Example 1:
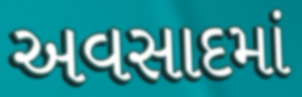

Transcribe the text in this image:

અવસાદમાં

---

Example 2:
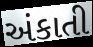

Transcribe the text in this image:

અંકાતી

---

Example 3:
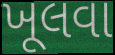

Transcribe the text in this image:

ખૂલવા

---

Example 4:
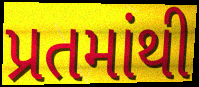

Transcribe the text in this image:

પ્રતમાંથી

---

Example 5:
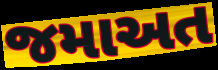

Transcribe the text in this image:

જમાઅત